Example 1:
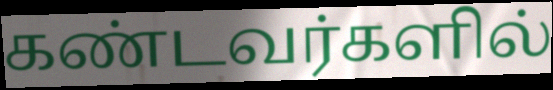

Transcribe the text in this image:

கண்டவர்களில்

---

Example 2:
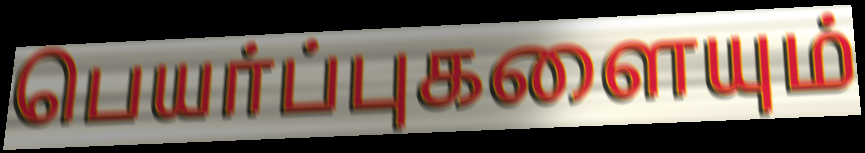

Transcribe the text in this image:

பெயர்ப்புகளையும்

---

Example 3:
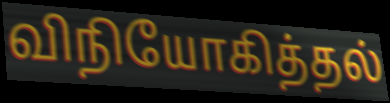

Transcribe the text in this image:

விநியோகித்தல்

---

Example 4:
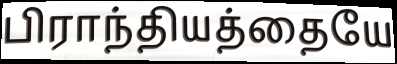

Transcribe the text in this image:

பிராந்தியத்தையே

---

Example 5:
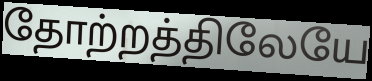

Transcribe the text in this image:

தோற்றத்திலேயே